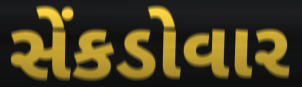
સેંકડોવાર